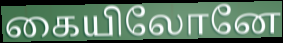
கையிலோனே